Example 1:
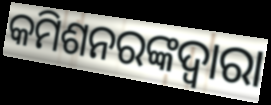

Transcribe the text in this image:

କମିଶନରଙ୍କଦ୍ୱାରା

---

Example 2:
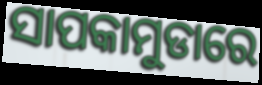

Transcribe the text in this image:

ସାପକାମୁଡାରେ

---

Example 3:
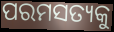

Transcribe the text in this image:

ପରମସତ୍ୟକୁ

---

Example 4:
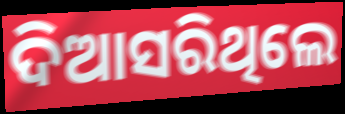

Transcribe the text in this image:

ଦିଆସରିଥିଲେ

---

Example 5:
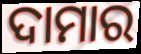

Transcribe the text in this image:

ଦାମାର